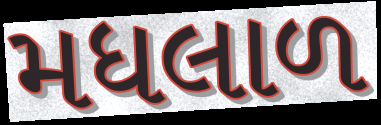
મધલાળ